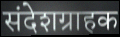
संदेशग्राहक